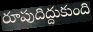
రూపుదిద్దుకుంది